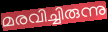
മരവിച്ചിരുന്നു